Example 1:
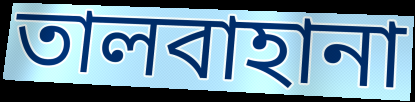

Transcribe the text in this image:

তালবাহানা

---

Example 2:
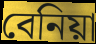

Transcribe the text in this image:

বেনিয়া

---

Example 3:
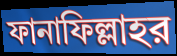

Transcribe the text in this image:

ফানাফিল্লাহর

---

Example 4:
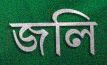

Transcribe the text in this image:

জলি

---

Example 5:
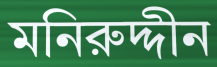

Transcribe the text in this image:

মনিরুদ্দীন